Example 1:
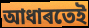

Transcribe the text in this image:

আধাৰতেই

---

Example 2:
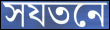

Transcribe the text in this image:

সযতনে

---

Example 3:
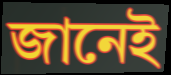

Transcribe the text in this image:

জানেই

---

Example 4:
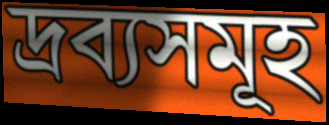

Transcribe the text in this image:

দ্ৰব্যসমূহ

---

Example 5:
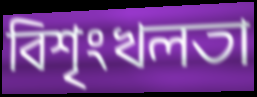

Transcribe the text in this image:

বিশৃংখলতা